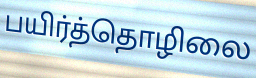
பயிர்த்தொழிலை